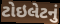
ટોઇલેટનું